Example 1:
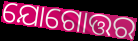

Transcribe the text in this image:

ଯୋଗୋତ୍ତର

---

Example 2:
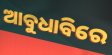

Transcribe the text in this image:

ଆବୁଧାବିରେ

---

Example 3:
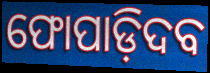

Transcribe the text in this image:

ଫୋପାଡ଼ିଦବ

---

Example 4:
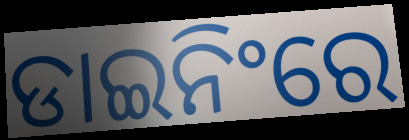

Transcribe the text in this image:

ଡାଇନିଂରେ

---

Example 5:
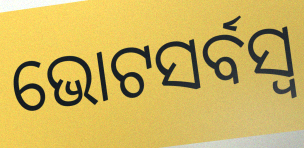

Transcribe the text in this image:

ଭୋଟସର୍ବସ୍ବ